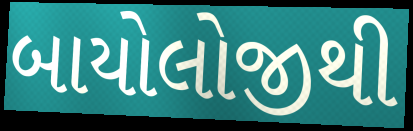
બાયોલોજીથી